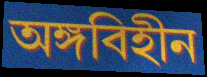
অঙ্গবিহীন